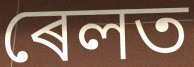
ৰেলত